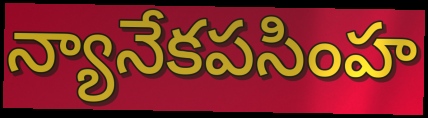
న్యానేకపసింహ